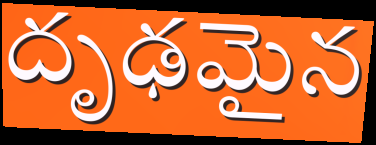
దృఢమైన